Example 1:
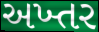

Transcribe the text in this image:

અખ્તર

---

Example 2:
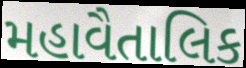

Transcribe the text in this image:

મહાવૈતાલિક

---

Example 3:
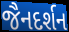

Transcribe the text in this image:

જૈનદર્શન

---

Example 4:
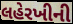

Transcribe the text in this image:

લહેરખીની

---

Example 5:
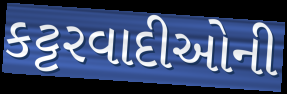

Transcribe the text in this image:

કટ્ટરવાદીઓની